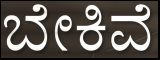
ಬೇಕಿವೆ